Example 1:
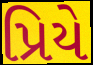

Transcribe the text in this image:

પ્રિયે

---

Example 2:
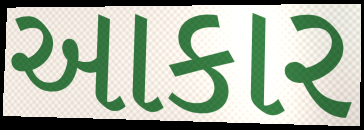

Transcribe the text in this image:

આકાર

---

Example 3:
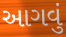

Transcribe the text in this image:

આગવું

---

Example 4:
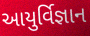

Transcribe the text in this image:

આયુર્વિજ્ઞાન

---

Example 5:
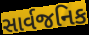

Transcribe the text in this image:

સાર્વજનિક